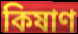
কিষাণ